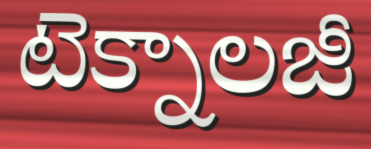
టెక్నాలజీ